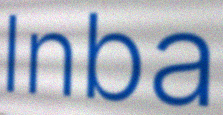
Inba